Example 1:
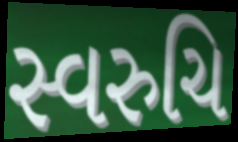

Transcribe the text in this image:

સ્વરુચિ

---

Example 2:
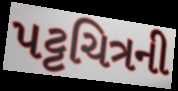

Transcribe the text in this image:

પટ્ટચિત્રની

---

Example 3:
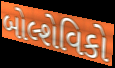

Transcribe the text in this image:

બોલ્શેવિકો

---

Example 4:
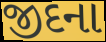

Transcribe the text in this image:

જીદના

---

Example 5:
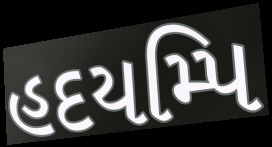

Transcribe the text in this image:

હદયમ્પિ